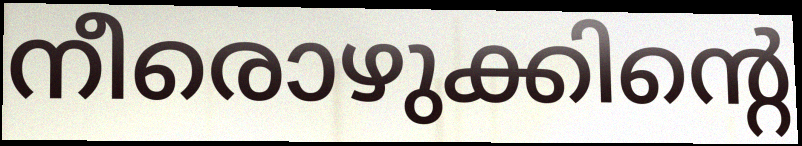
നീരൊഴുക്കിന്റെ